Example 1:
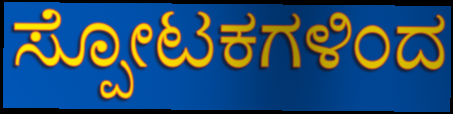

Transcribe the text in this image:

ಸ್ಪೋಟಕಗಳಿಂದ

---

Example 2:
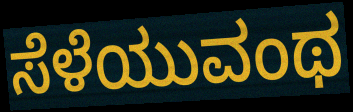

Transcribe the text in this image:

ಸೆಳೆಯುವಂಥ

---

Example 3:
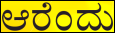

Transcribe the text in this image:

ಆರೆಂದು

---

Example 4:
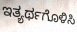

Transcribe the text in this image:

ಇತ್ಯರ್ಥಗೊಳಿಸಿ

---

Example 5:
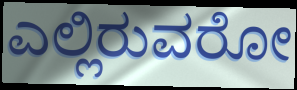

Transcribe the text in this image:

ಎಲ್ಲಿರುವರೋ